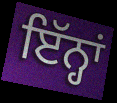
ਇੱਨ੍ਹਾਂ